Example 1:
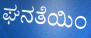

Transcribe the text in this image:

ಘನತೆಯಿಂ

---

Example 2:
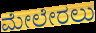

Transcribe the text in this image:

ಮೇಲೇರಲು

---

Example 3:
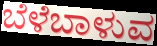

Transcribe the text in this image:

ಬೆಳೆಬಾಳುವ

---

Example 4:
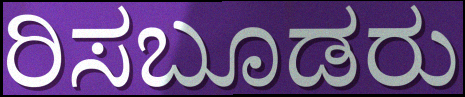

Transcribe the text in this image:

ರಿಸಬೂಡರು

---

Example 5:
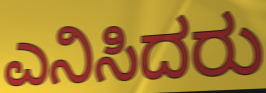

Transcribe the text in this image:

ಎನಿಸಿದರು